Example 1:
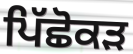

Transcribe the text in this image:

ਪਿੱਛੋਕੜ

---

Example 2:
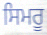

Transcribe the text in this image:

ਸਿਮਰੂ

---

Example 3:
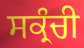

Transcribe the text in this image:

ਸਕ੍ਰੰਚੀ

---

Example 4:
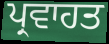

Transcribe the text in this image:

ਪ੍ਰਵਾਹਤ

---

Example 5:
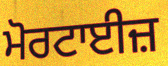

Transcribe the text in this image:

ਮੋਰਟਾਈਜ਼